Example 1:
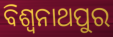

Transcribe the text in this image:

ବିଶ୍ଵନାଥପୁର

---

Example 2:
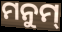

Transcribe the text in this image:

ମନୁମ୍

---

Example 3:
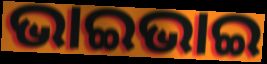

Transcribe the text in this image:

ଭାଇଭାଇ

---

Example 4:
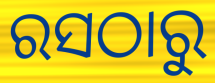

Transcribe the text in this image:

ରସଠାରୁ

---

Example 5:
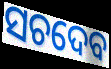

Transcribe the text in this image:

ସଚଦେବ